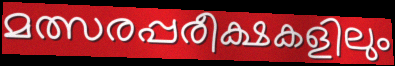
മത്സരപ്പരീക്ഷകളിലും